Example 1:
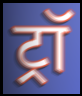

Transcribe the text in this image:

ट्रॉ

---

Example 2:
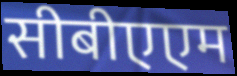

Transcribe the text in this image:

सीबीएएम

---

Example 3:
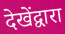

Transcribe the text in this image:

देखेंद्वारा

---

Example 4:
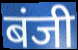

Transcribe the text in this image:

बंजी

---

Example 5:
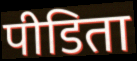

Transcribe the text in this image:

पीडिता